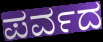
ಪರ್ವದ